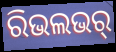
ରିଭଲଭର୍